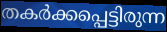
തകർക്കപ്പെട്ടിരുന്ന